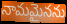
నామమైనను